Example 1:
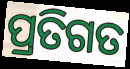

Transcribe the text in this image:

ପ୍ରତିଗତ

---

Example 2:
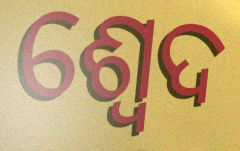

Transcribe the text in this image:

ଶ୍ଵେଦ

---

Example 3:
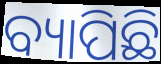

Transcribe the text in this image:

ବ୍ୟାପିଛି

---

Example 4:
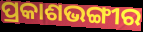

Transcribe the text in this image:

ପ୍ରକାଶଭଙ୍ଗୀର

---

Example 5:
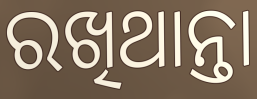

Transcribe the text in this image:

ରଖିଥାନ୍ତା